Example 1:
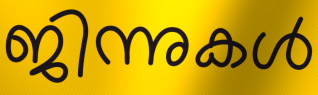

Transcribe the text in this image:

ജിന്നുകൾ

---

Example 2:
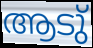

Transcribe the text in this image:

ആടു്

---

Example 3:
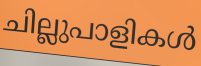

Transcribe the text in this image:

ചില്ലുപാളികൾ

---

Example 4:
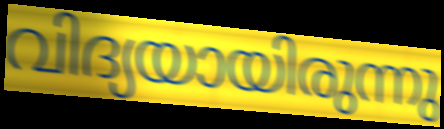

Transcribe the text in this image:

വിദ്യയായിരുന്നു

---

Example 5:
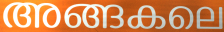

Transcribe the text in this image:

അങ്ങകലെ